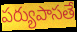
పర్యుపాసతే